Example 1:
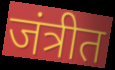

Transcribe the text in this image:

जंत्रीत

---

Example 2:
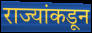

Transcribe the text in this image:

राज्यांकडून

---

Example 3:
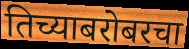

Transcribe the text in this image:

तिच्याबरोबरचा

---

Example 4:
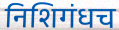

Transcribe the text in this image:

निशिगंधच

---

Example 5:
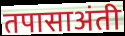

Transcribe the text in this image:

तपासाअंती